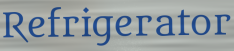
Refrigerator